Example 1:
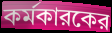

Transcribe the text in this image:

কর্মকারকের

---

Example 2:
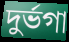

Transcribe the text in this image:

দুর্ভগা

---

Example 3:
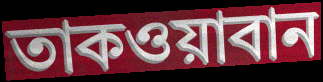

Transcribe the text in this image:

তাকওয়াবান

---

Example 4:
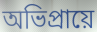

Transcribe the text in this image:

অভিপ্রায়ে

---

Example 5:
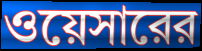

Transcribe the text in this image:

ওয়েসারের